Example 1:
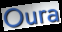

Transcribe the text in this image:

Oura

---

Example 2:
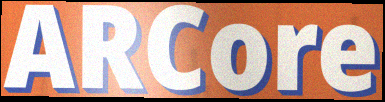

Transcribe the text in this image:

ARCore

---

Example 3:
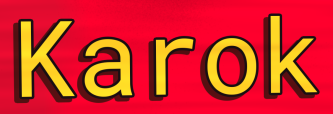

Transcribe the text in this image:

Karok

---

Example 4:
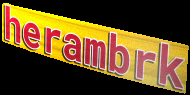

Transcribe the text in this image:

herambrk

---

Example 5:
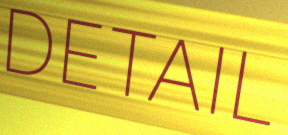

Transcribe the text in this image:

DETAIL